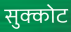
सुक्कोट